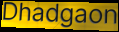
Dhadgaon